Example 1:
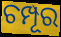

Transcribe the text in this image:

ଚମ୍ପୂର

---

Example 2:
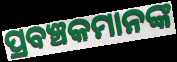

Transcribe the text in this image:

ପ୍ରବଞ୍ଚକମାନଙ୍କ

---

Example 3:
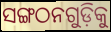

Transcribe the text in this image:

ସଙ୍ଗଠନଗୁଡ଼ିକୁ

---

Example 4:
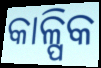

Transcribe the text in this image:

କାଳ୍ପିକ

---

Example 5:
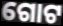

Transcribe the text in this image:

ଗୋଟ